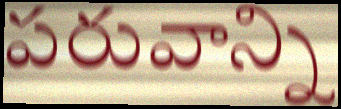
పరువాన్ని